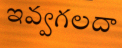
ఇవ్వగలదా